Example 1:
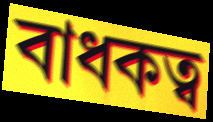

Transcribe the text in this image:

বাধকত্ব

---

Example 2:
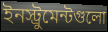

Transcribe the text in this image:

ইনস্ট্রুমেন্টগুলো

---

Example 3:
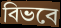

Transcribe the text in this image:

বিভবে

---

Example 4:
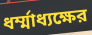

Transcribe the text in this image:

ধর্ম্মাধ্যক্ষের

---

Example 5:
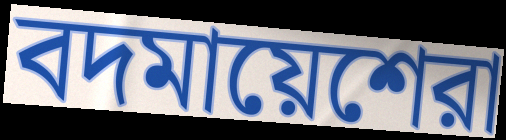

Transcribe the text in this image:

বদমায়েশেরা